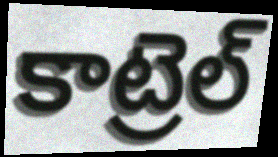
కాట్రెల్